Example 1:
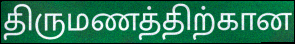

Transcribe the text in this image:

திருமணத்திற்கான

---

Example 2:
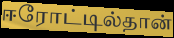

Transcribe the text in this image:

ஈரோட்டில்தான்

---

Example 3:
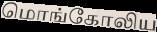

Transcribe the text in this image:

மொங்கோலிய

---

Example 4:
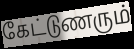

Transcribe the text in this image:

கேட்டுணரும்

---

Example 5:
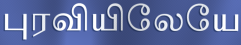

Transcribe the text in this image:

புரவியிலேயே